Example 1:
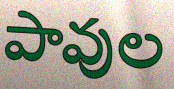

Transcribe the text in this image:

పావుల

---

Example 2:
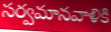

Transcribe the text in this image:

సర్వమానవాళికి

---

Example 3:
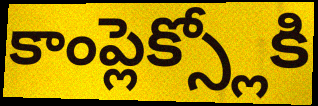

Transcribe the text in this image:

కాంప్లెక్స్లోకి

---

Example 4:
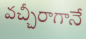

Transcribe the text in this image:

వచ్చీరాగానే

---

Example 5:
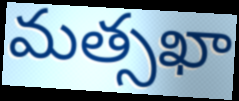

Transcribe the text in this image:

మత్సఖా